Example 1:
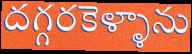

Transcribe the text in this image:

దగ్గరకెళ్ళాను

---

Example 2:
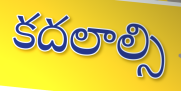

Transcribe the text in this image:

కదలాల్సి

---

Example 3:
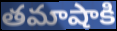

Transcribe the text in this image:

తమాషాకి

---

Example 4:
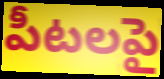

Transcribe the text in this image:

పీటలపై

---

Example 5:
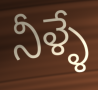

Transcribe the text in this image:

నీళ్ళే